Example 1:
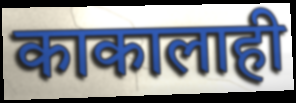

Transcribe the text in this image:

काकालाही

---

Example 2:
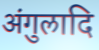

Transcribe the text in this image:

अंगुलादि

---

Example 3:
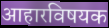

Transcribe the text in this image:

आहारविषयक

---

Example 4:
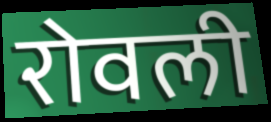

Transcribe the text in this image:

रोवली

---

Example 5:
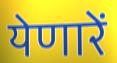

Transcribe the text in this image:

येणारें